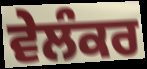
ਵੇਲੰਕਰ